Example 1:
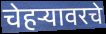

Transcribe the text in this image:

चेहऱ्यावरचे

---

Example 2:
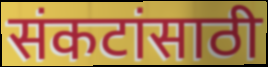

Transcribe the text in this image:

संकटांसाठी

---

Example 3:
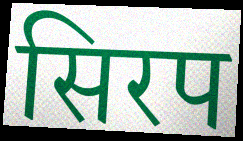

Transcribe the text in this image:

सिरप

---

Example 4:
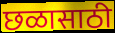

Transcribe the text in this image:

छळासाठी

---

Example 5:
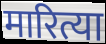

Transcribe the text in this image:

मारित्या